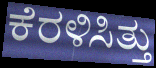
ಕೆರಳಿಸಿತ್ತು